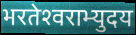
भरतेश्वराभ्युदय